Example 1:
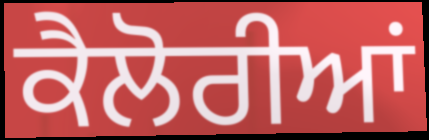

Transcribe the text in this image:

ਕੈਲੋਰੀਆਂ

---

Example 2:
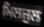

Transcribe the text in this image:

ਮਿਲਜੁਲ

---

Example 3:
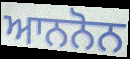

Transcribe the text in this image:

ਆਨਨੋਨ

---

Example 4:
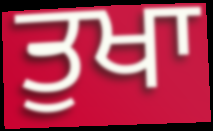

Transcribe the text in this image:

ਤੁਖਾ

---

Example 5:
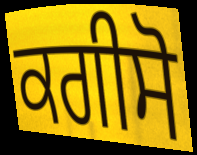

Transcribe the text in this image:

ਕਗੀਸੋ